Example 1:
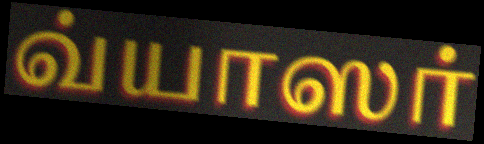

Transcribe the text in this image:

வ்யாஸர்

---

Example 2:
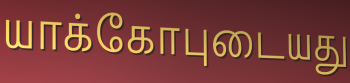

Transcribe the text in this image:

யாக்கோபுடையது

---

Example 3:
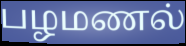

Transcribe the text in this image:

பழமணல்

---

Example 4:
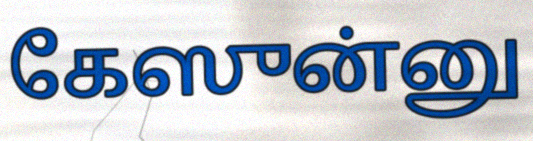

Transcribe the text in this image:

கேஸுன்னு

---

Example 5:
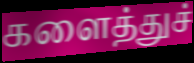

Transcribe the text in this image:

களைத்துச்